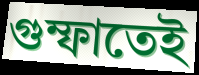
গুম্ফাতেই